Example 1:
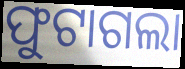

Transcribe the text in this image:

ଫୁଟାଗଲା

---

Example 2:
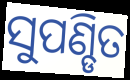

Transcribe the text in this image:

ସୁପଣ୍ଡିତ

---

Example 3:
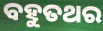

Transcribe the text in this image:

ବହୁତଥର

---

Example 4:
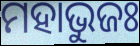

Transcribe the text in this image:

ମହାଭୁଜଃ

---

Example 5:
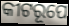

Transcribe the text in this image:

କୀଟରୂପେ